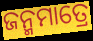
ଜନ୍ମମାତ୍ରେ